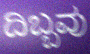
ದಿಬ್ಬವು